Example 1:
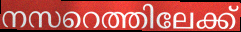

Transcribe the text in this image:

നസറെത്തിലേക്ക്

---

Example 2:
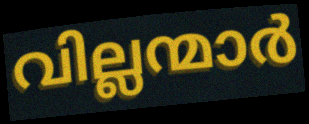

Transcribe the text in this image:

വില്ലന്മാർ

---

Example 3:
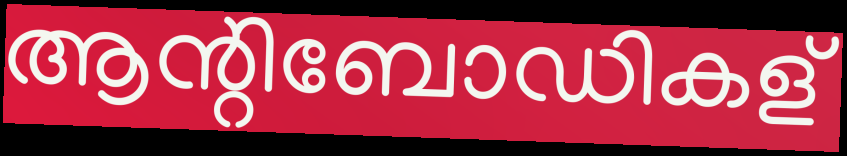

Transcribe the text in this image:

ആന്റിബോഡികള്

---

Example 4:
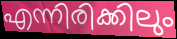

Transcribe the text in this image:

എന്നിരിക്കിലും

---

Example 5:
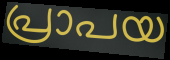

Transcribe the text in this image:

പ്രാപയ